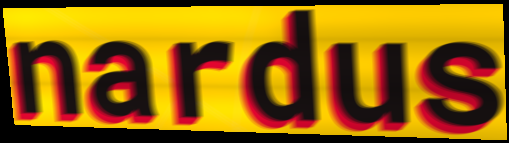
nardus